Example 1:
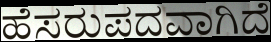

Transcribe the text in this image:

ಹೆಸರುಪದವಾಗಿದೆ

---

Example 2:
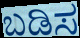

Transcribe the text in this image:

ಬಡಿಸ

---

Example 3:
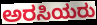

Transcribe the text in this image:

ಅರಸಿಯರು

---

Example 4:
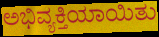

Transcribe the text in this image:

ಅಭಿವ್ಯಕ್ತಿಯಾಯಿತು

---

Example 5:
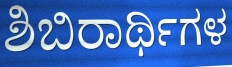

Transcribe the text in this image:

ಶಿಬಿರಾರ್ಥಿಗಳ